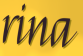
rina